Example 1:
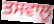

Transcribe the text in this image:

ਤਸਵਾਲੂ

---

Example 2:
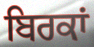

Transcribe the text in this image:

ਬਿਰਕਾਂ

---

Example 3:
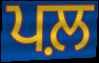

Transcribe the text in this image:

ਪਲ਼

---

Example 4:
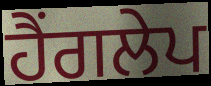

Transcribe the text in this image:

ਹੈਂਗਲੇਪ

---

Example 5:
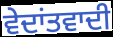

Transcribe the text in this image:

ਵੇਦਾਂਤਵਾਦੀ